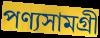
পণ্যসামগ্রী